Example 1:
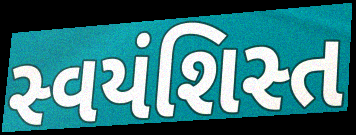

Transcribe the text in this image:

સ્વયંશિસ્ત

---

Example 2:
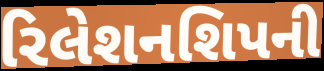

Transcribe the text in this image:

રિલેશનશિપની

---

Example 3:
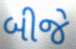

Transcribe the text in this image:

બીજે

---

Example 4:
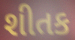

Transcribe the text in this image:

શીતક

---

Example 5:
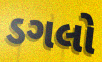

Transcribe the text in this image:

ડગલો